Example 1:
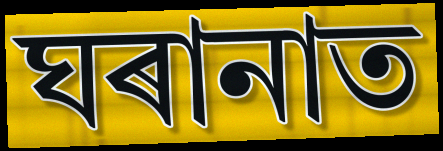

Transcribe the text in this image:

ঘৰানাত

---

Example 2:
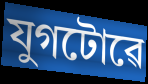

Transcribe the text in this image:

যুগটোৱে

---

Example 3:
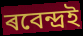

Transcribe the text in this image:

ৰবেন্দ্ৰই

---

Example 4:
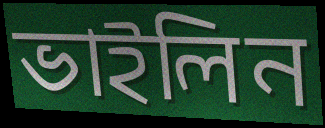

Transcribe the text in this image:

ভাইলিন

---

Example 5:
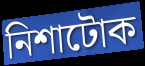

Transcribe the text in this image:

নিশাটোক